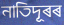
নাতিদূৰৰ